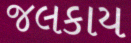
જલકાય